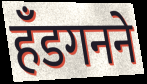
हँडगनने